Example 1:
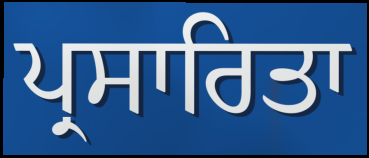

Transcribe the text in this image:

ਪ੍ਰਸਾਰਿਤਾ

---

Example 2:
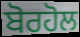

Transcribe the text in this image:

ਬੋਰਹੋਲ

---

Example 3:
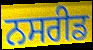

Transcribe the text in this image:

ਨਸਰੀਡ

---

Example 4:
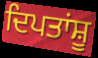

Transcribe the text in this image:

ਦਿਪਤਾਂਸ਼ੂ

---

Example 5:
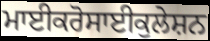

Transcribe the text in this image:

ਮਾਈਕਰੋਸਾਈਕੁਲੇਸ਼ਨ